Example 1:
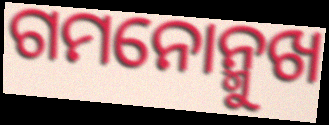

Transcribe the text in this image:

ଗମନୋନ୍ମୁଖ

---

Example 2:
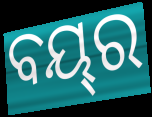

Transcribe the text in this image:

ବୟ୍‌ର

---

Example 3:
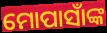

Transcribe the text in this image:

ମୋପାସାଁଙ୍କ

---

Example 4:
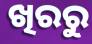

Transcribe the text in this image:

ଖିରରୁ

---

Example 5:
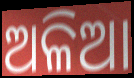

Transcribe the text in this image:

ଅଳିଆ